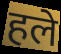
हले